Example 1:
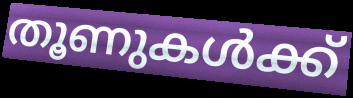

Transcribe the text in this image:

തൂണുകൾക്ക്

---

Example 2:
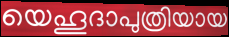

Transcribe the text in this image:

യെഹൂദാപുത്രിയായ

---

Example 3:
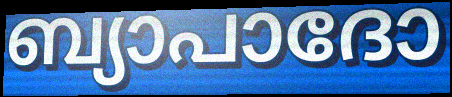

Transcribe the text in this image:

ബ്യാപാദോ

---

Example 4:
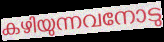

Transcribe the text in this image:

കഴിയുന്നവനോടു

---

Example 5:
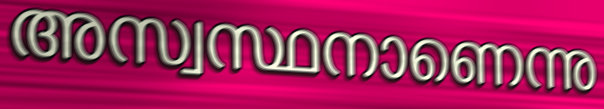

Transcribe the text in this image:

അസ്വസ്ഥനാണെന്നു